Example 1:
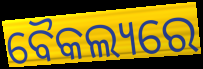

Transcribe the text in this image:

ବୈକଲ୍ୟରେ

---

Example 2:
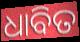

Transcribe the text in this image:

ଧାବିତ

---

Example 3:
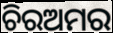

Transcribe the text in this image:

ଚିରଅମର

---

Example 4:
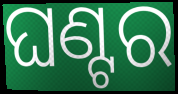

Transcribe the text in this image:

ଘଣ୍ଟର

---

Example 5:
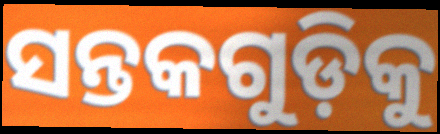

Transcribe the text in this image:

ସନ୍ତକଗୁଡ଼ିକୁ